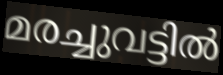
മരച്ചുവട്ടിൽ